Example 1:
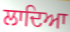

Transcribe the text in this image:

ਲਾਦਿਆ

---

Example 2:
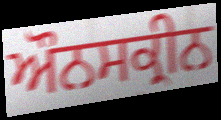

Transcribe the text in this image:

ਔਨਸਕ੍ਰੀਨ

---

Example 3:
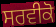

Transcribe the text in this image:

ਸਰਵੀਕੋ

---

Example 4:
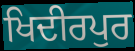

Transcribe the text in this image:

ਖਿਦੀਰਪੁਰ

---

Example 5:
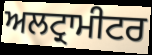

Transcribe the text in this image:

ਅਲਟ੍ਰਾਮੀਟਰ